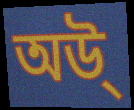
অউ্